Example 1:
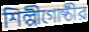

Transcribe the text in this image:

শিল্পীগোষ্ঠীর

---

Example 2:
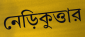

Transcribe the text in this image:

নেড়িকুত্তার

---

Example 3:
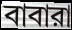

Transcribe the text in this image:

বাবারা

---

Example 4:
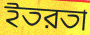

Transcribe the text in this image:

ইতরতা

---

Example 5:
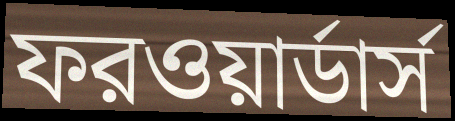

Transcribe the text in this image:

ফরওয়ার্ডার্স